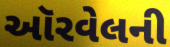
ઑરવેલની